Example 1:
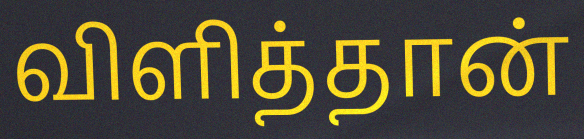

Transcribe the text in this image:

விளித்தான்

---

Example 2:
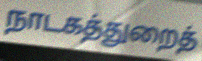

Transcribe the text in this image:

நாடகத்துறைத்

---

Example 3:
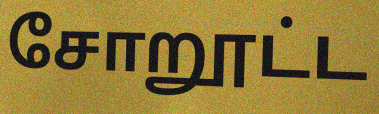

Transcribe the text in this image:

சோறூட்ட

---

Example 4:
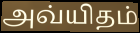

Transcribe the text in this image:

அவ்யிதம்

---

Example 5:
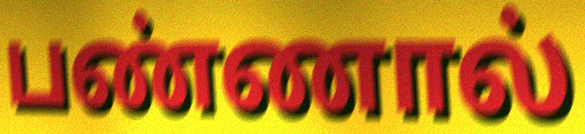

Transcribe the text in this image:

பண்ணால்